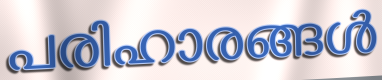
പരിഹാരങ്ങൾ